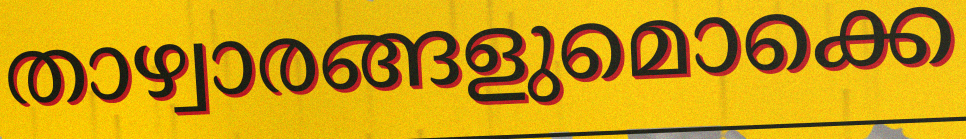
താഴ്വാരങ്ങളുമൊക്കെ